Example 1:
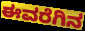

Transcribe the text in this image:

ಈವರೆಗಿನ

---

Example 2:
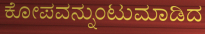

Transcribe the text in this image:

ಕೋಪವನ್ನುಂಟುಮಾಡಿದ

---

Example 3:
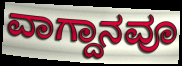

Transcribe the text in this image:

ವಾಗ್ದಾನವೂ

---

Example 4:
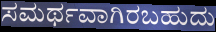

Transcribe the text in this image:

ಸಮರ್ಥವಾಗಿರಬಹುದು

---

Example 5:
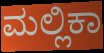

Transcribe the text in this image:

ಮಲ್ಲಿಕಾ